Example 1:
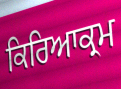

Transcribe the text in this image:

ਕਿਰਿਆਕ੍ਰਮ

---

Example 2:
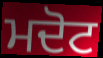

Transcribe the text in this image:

ਮਦੋਟ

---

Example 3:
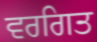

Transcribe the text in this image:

ਵਰਗਿਤ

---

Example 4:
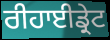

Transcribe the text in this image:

ਰੀਹਾਈਡ੍ਰੇਟ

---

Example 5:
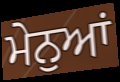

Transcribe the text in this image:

ਮੇਨੁਆਂ